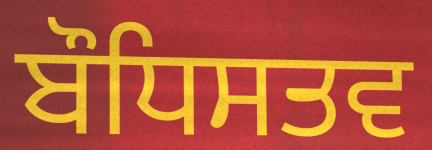
ਬੌਧਿਸਤਵ